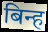
बिन्ह